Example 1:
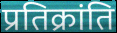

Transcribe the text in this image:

प्रतिक्रांति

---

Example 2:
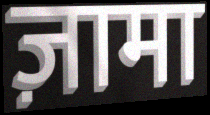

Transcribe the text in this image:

ज़ामा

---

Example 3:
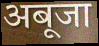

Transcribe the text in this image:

अबूजा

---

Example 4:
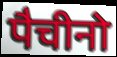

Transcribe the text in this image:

पैचीनो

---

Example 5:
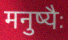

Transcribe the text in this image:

मनुष्यैः